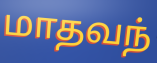
மாதவந்